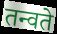
तन्वते